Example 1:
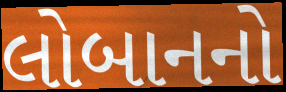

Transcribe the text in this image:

લોબાનનો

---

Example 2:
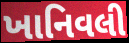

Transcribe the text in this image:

ખાનિવલી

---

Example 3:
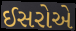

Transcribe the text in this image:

ઈસરોએ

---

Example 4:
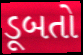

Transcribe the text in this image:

ડૂબતો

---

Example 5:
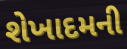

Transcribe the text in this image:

શેખાદમની